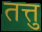
तत्तु